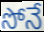
సోనే